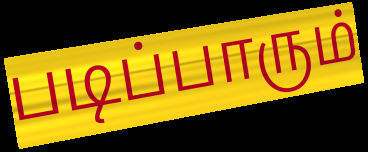
படிப்பாரும்